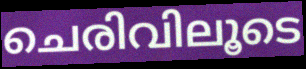
ചെരിവിലൂടെ